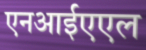
एनआईएएल